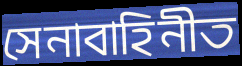
সেনাবাহিনীত